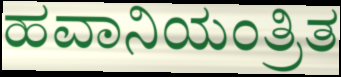
ಹವಾನಿಯಂತ್ರಿತ